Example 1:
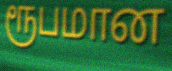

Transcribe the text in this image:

ரூபமான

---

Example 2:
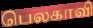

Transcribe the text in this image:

பெலகாவி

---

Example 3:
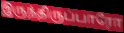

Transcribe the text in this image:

இருந்திருப்பாரோ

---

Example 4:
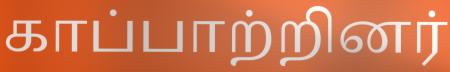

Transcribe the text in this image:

காப்பாற்றினர்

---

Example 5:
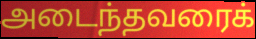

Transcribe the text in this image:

அடைந்தவரைக்